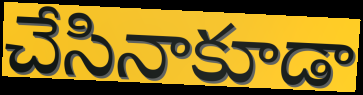
చేసినాకూడా